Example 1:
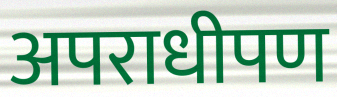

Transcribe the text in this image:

अपराधीपण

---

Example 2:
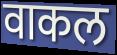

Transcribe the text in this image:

वाकल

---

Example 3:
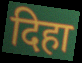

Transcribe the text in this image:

दिहा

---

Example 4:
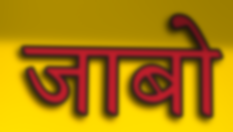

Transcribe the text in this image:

जाबो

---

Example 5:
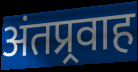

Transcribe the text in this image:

अंतप्र्रवाह